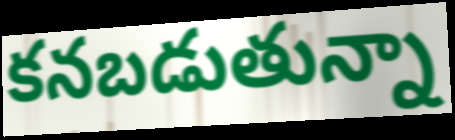
కనబడుతున్నా